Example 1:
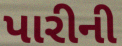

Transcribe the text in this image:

પારીની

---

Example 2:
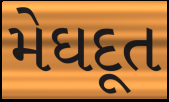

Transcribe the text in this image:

મેઘદૂત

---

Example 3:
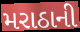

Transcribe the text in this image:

મરાઠાની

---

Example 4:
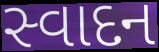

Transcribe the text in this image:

સ્વાદન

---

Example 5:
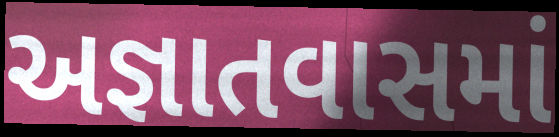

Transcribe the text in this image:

અજ્ઞાતવાસમાં